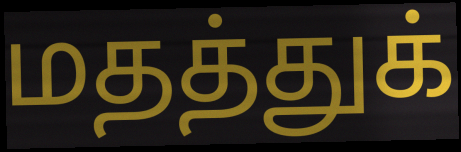
மதத்துக்